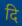
दि